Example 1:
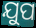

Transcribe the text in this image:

ଯୁପ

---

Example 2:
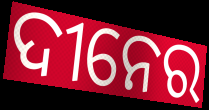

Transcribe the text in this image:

ଦୀନେର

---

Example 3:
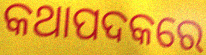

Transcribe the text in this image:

କଥାପଦକରେ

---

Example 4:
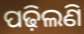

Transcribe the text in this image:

ପଢ଼ିଲଣି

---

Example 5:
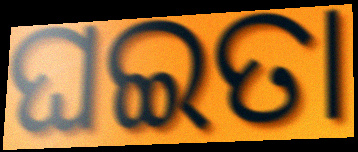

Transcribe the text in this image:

ଘଇତା